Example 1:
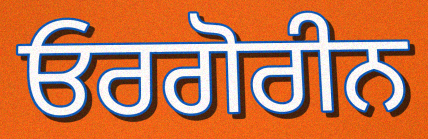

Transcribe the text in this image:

ਓਰਗੋਰੀਨ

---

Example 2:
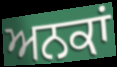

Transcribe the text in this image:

ਅਨਕਾਂ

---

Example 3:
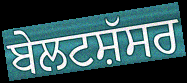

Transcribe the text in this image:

ਬੇਲਟਸ਼ੱਸਰ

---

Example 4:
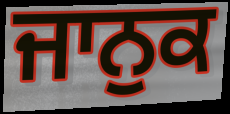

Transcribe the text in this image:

ਜਾਨੁਕ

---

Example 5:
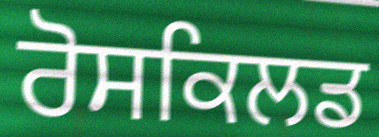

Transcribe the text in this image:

ਰੋਸਕਿਲਡ